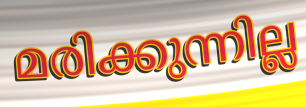
മരിക്കുന്നില്ല